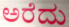
ಅರೆದು